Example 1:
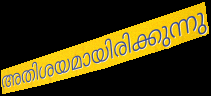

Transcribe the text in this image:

അതിശയമായിരിക്കുന്നു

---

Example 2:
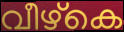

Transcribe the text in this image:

വീഴ്കെ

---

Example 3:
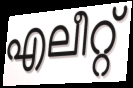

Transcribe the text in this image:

എലീറ്റ്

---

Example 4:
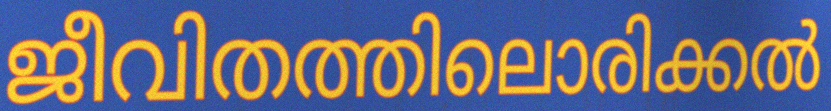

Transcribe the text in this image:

ജീവിതത്തിലൊരിക്കൽ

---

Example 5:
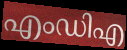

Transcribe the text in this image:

എംഡിഎ